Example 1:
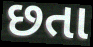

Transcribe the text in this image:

છતા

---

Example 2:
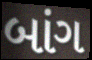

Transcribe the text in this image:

બાંગ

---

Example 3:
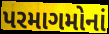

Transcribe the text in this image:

પરમાગમોનાં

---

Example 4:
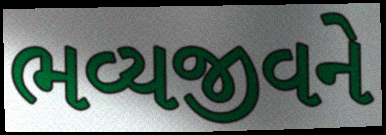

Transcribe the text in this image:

ભવ્યજીવને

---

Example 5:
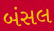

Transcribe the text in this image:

બંસલ